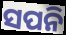
ସପନି